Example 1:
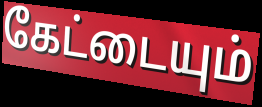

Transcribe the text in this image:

கேட்டையும்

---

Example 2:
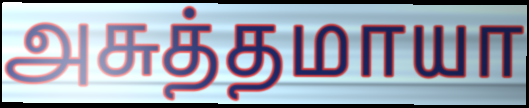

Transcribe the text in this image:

அசுத்தமாயா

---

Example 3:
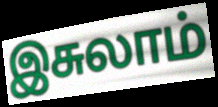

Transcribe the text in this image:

இசுலாம்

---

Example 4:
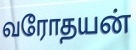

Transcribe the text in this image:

வரோதயன்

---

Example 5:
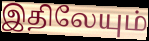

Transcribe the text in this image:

இதிலேயும்